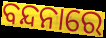
ବନ୍ଦନାରେ